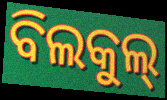
ବିଲକୁଲ୍